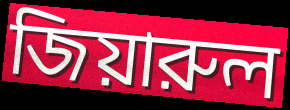
জিয়ারুল